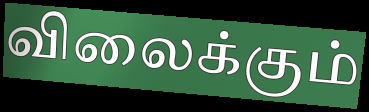
விலைக்கும்